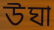
উঘা